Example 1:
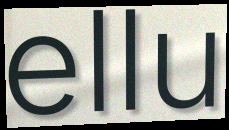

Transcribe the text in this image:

ellu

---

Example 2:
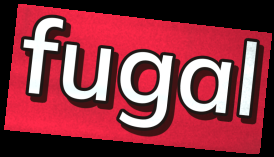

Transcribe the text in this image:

fugal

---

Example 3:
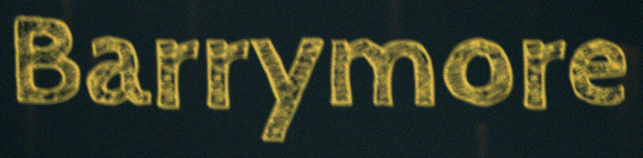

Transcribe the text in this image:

Barrymore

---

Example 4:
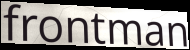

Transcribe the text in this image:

frontman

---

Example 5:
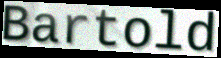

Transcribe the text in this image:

Bartold